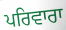
ਪਰਿਵਾਰਾ